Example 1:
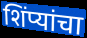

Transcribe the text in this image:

शिंप्यांचा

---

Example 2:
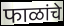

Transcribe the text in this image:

फाळांचे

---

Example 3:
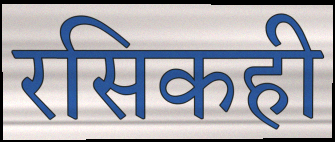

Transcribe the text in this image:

रसिकही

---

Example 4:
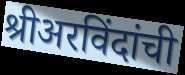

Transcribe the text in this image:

श्रीअरविंदांची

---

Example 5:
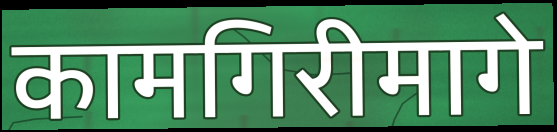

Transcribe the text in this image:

कामगिरीमागे